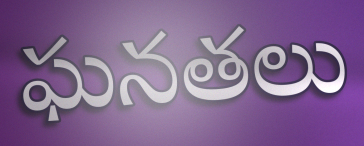
ఘనతలు